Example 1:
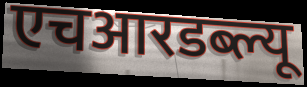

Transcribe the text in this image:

एचआरडब्ल्यू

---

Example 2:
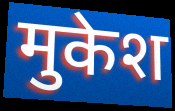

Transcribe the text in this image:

मुकेश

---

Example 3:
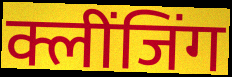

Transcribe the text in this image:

क्लींजिंग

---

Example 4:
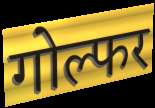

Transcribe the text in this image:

गोल्फर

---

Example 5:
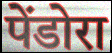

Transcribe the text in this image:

पेंडोरा